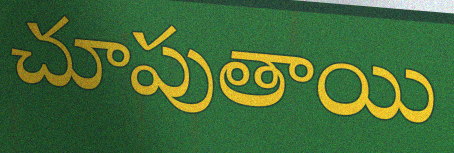
చూపుతాయి